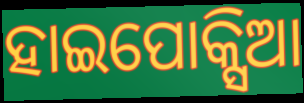
ହାଇପୋକ୍ସିଆ